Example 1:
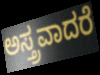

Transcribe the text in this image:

ಅಸ್ತ್ರವಾದರೆ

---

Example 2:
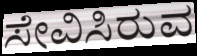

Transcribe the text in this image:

ಸೇವಿಸಿರುವ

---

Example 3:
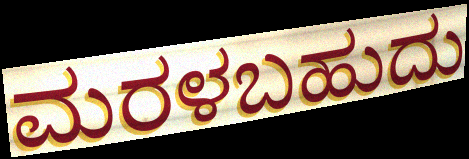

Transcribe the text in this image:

ಮರಳಬಹುದು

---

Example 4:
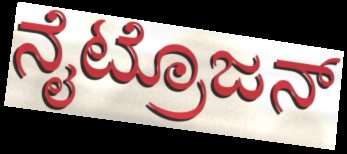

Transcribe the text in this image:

ನೈಟ್ರೊಜನ್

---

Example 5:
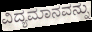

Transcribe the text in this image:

ವಿದ್ಯಮಾನವನ್ನು